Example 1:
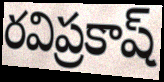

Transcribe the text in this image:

రవిప్రకాష్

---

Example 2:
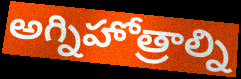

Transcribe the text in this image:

అగ్నిహోత్రాల్ని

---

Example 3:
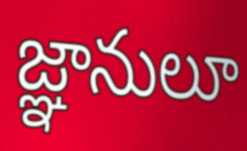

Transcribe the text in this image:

జ్ఞానులూ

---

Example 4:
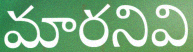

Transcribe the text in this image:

మారనివి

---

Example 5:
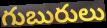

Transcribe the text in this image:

గుబురులు